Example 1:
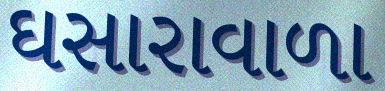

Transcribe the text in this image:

ઘસારાવાળા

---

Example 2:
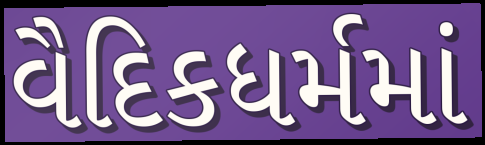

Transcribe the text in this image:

વૈદિકધર્મમાં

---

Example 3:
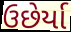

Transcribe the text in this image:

ઉછેર્યા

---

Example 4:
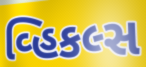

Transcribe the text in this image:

વ્હિકલ્સ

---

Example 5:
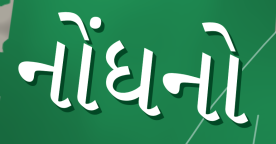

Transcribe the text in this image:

નોંધનો